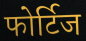
फोर्टिज